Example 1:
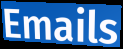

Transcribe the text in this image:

Emails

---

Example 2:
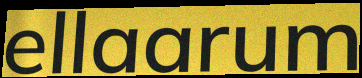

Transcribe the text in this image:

ellaarum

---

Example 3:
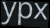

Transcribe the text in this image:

ypx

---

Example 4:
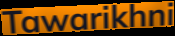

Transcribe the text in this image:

Tawarikhni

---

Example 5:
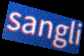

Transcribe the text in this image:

sangli